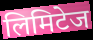
लिमिटेज